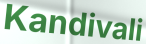
Kandivali